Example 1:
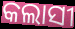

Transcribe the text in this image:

କଲାସୀ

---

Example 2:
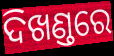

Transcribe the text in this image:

ଦିଖଣ୍ଡରେ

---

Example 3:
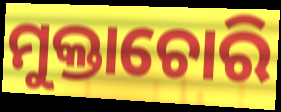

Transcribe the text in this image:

ମୁକ୍ତାଚୋରି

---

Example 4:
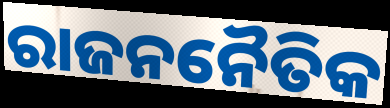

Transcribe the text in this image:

ରାଜନନୈତିକ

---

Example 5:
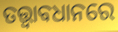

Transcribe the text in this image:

ତତ୍ତ୍ବାବଧାନରେ